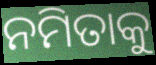
ନମିତାକୁ